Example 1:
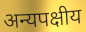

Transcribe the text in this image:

अन्यपक्षीय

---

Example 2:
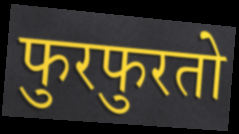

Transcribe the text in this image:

फुरफुरतो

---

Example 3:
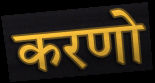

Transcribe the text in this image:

करणो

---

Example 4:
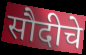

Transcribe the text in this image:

सौदीचे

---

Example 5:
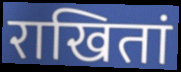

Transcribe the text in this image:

राखितां